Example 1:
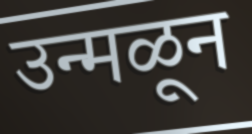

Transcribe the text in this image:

उन्मळून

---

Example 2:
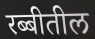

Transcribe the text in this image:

रब्बीतील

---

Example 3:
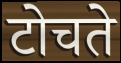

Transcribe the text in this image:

टोचते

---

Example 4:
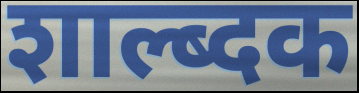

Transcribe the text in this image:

शाल्ब्दक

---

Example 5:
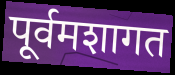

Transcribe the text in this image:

पूर्वमशागत